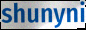
shunyni